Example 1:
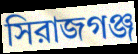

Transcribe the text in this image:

সিরাজগঞ্জ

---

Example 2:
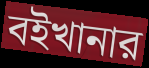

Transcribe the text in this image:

বইখানার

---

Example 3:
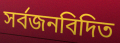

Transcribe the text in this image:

সর্বজনবিদিত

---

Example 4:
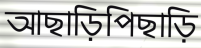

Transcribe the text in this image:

আছাড়িপিছাড়ি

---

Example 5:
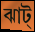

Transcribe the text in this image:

ঝাট্